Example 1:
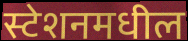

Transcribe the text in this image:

स्टेशनमधील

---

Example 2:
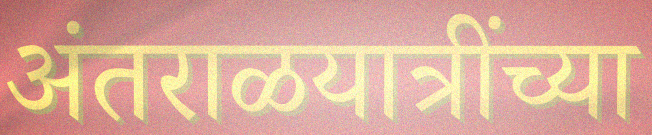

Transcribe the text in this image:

अंतराळयात्रींच्या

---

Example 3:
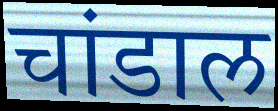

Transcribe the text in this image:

चांडाल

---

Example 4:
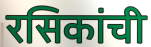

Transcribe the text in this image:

रसिकांची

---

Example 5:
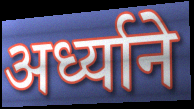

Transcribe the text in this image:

अर्ध्याने